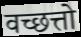
वच्छत्तो